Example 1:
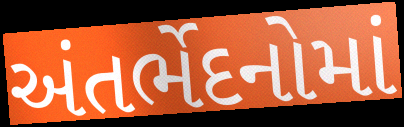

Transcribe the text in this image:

અંતર્ભેદનોમાં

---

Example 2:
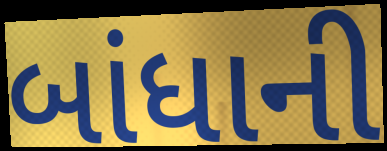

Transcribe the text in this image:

બાંધાની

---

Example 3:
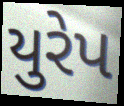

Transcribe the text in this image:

યુરેપ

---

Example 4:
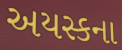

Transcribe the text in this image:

અયસ્કના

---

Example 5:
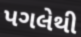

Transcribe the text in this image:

પગલેથી